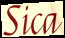
Sica